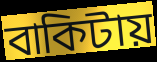
বাকিটায়